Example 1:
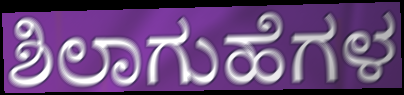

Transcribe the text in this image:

ಶಿಲಾಗುಹೆಗಳ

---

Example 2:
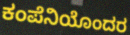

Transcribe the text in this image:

ಕಂಪೆನಿಯೊಂದರ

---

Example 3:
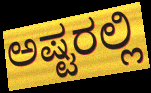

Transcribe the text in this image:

ಅಷ್ಟರಲ್ಲಿ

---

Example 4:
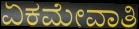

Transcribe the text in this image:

ಏಕಮೇವಾತಿ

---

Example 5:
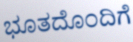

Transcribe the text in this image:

ಭೂತದೊಂದಿಗೆ